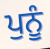
ਪੁਨੂੰ